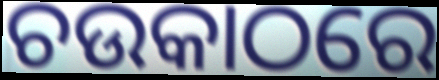
ଚଉକାଠରେ